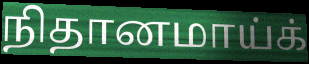
நிதானமாய்க்